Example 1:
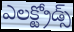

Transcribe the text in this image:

ఎలక్ట్రోడ్స్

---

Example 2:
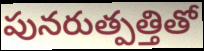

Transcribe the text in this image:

పునరుత్పత్తితో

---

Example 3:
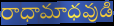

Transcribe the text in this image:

రాధామాధవుడి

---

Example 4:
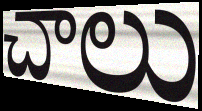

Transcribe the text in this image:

చాలు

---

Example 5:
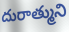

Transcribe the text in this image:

దురాత్ముని